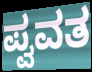
ಪ್ವವತ